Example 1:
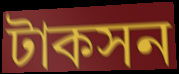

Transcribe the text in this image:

টাকসন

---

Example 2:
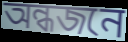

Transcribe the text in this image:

অন্ধজনে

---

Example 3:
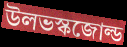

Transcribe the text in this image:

উলভস্কজোল্ড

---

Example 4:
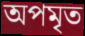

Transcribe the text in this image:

অপমৃত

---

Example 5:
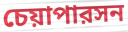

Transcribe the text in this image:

চেয়াপারসন